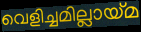
വെളിച്ചമില്ലായ്മ